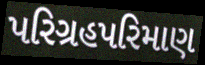
પરિગ્રહપરિમાણ